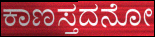
ಕಾಣಸ್ತದನೋ